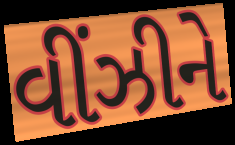
વીંઝીને